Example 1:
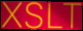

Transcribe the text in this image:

XSLT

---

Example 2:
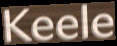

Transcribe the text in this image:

Keele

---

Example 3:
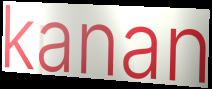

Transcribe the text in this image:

kanan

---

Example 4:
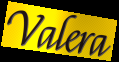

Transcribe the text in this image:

Valera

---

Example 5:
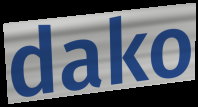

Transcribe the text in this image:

dako